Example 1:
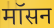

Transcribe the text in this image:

मॉसन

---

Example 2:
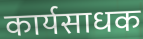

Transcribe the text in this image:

कार्यसाधक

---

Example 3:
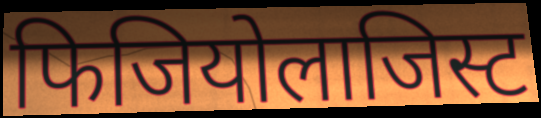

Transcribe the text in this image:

फिजियोलाजिस्ट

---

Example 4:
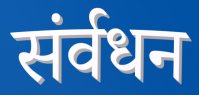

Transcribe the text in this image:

संर्वधन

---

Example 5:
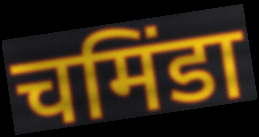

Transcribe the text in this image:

चमिंडा